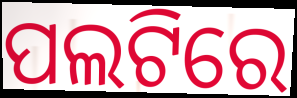
ପଲଟିରେ